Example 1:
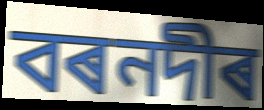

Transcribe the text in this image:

বৰনদীৰ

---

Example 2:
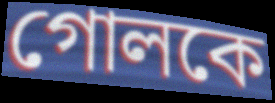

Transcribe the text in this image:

গোলকে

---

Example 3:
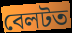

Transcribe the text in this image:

বেলটত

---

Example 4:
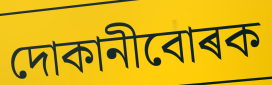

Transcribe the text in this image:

দোকানীবোৰক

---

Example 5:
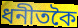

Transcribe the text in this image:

ধনীতকৈ